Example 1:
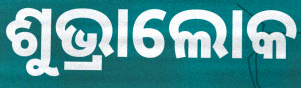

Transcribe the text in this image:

ଶୁଭ୍ରାଲୋକ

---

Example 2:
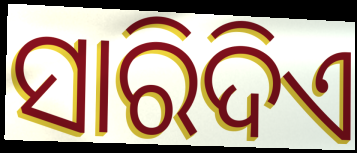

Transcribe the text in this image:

ସାରିଦିଏ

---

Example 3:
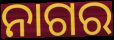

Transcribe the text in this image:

ନାଗର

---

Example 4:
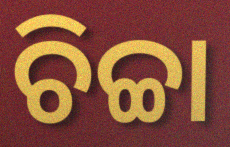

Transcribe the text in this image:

ଚିଚ୍ଚା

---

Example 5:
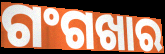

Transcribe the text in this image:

ଗଂଗଖାର